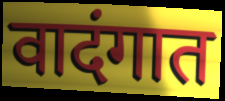
वादंगात